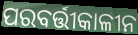
ପରବର୍ତ୍ତୀକାଳୀନ